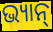
ଭ୍ୟାନ୍